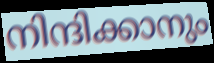
നിന്ദിക്കാനും